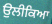
ਉਲੀਕਿਆ